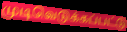
முடிவெடுக்கப்பட்டு